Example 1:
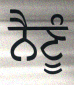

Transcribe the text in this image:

ਨੈਣੂੰ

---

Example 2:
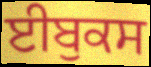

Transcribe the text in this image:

ਈਬੁਕਸ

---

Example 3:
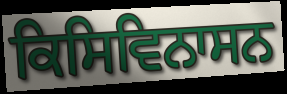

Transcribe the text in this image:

ਕਿਸਿਵਿਨਾਸਨ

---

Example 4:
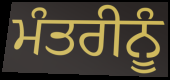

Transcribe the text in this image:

ਮੰਤਰੀਨੂੰ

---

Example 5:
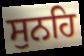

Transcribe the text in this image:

ਸੁਨਹਿ